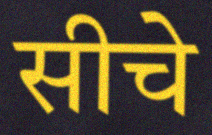
सीचे